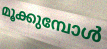
മൂക്കുമ്പോൾ